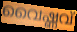
വൈഷ്ണവ്